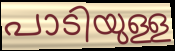
പാടിയുള്ള